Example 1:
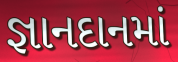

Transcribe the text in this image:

જ્ઞાનદાનમાં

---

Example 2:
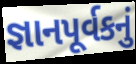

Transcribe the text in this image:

જ્ઞાનપૂર્વકનું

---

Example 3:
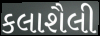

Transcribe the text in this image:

કલાશૈલી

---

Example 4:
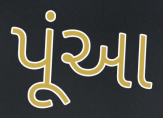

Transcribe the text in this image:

પૂંઆ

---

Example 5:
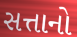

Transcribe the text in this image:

સત્તાનો